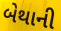
બેથાની